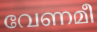
വേണമീ